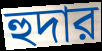
হুদার